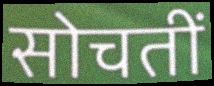
सोचतीं